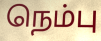
நெம்பு